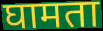
घामता